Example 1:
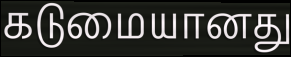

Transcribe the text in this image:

கடுமையானது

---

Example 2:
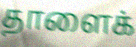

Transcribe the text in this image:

தாளைக்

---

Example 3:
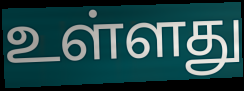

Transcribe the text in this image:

உள்ளது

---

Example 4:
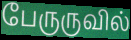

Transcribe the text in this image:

பேருருவில்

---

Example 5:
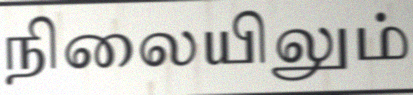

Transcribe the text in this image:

நிலையிலும்